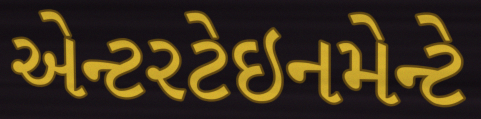
એન્ટરટેઇનમેન્ટે